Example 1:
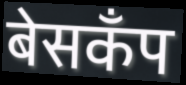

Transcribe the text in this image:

बेसकँप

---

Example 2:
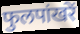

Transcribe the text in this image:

फुलपांखरें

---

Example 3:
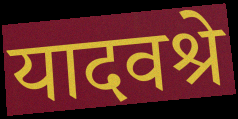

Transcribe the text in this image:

यादवश्रे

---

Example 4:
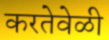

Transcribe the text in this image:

करतेवेळी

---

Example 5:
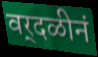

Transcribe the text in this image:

वर्दळीनं